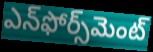
ఎన్‌ఫోర్స్‌మెంట్